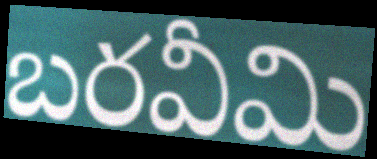
బరవీమి